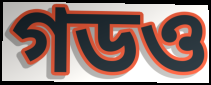
গডও